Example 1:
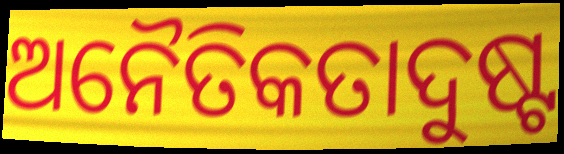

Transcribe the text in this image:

ଅନୈତିକତାଦୁଷ୍ଟ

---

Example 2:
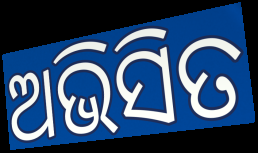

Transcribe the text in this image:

ଅଭିସିତ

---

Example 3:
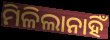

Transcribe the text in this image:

ମିଳିଲାନାହିଁ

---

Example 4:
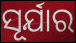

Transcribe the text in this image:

ସୂର୍ଯାର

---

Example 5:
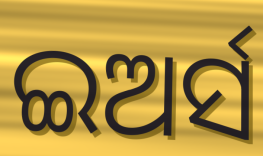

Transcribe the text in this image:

ଇଅର୍ସ